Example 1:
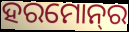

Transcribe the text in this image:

ହରମୋନ୍‍ର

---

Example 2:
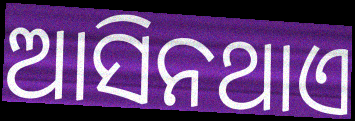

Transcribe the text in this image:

ଆସିନଥାଏ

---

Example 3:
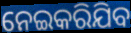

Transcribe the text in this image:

ନେଇକରିଯିବ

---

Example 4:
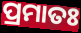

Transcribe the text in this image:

ପ୍ରମାତଃ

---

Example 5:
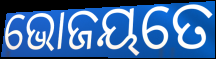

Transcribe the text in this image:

ଭୋଜୟତେ